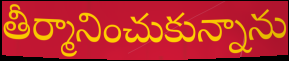
తీర్మానించుకున్నాను